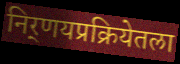
निर्णयप्रक्रियेतला